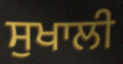
ਸੁਖਾਲੀ